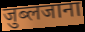
जुब्लजाना